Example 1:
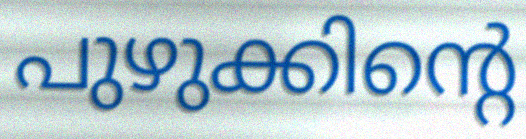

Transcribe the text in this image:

പുഴുക്കിന്റെ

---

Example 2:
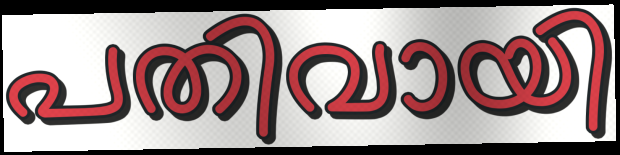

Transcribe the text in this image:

പതിവായി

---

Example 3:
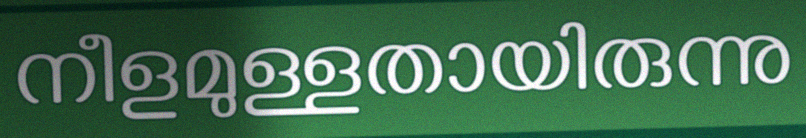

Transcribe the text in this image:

നീളമുള്ളതായിരുന്നു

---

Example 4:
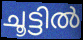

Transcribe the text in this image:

ചൂട്ടിൽ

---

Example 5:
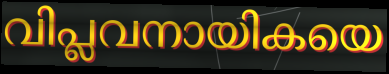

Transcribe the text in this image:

വിപ്ലവനായികയെ